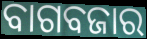
ବାଗବଜାର